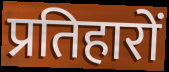
प्रतिहारों